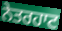
ਨੇਤਰਹਾਟ